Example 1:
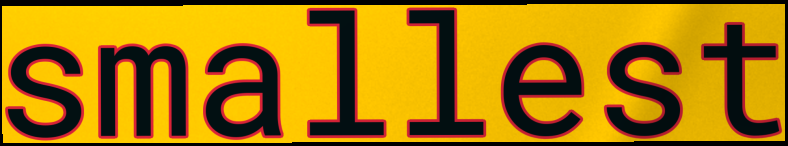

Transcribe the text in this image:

smallest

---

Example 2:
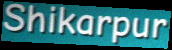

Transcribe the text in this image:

Shikarpur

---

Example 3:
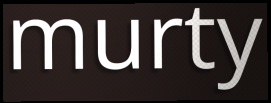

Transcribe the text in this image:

murty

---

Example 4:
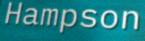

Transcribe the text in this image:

Hampson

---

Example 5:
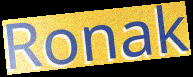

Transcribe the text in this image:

Ronak